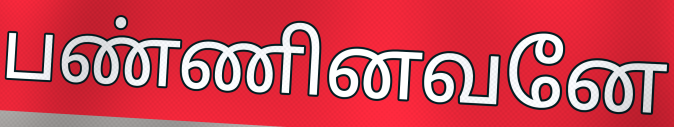
பண்ணினவனே